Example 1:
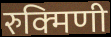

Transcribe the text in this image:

रुक्मिणी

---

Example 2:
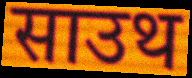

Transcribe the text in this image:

साउथ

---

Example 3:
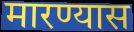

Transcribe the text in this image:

मारण्यास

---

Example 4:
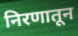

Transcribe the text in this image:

निरणातून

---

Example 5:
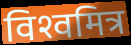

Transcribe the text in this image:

विश्वमित्र